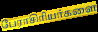
பேராசிரியர்களை